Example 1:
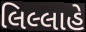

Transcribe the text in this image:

લિલ્લાહે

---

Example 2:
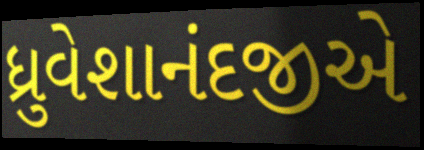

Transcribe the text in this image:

ધ્રુવેશાનંદજીએ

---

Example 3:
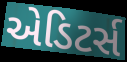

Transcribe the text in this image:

એડિટર્સ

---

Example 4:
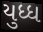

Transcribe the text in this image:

યુધ્ધ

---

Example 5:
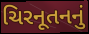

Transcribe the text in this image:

ચિરનૂતનનું